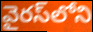
వైరస్‌లోని